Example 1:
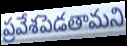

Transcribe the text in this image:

ప్రవేశపెడతామని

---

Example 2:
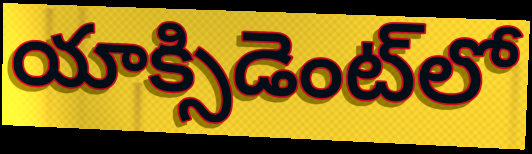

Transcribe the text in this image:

యాక్సిడెంట్‌లో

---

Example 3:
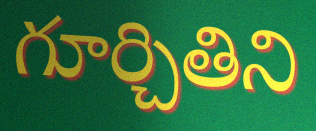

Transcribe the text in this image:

గూర్చితిని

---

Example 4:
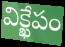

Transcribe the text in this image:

విక్ఖేపం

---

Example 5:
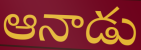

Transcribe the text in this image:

ఆనాడు